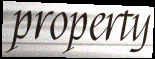
property